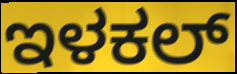
ಇಳಕಲ್